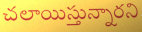
చలాయిస్తున్నారని